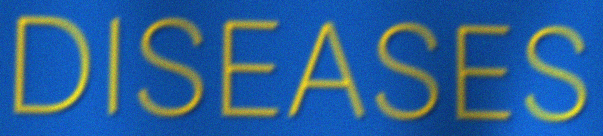
DISEASES